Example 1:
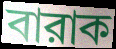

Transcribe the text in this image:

বারাক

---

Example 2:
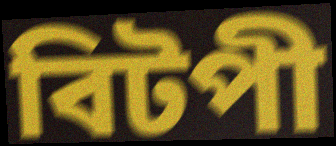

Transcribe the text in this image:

বিটপী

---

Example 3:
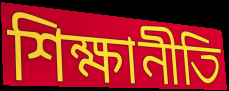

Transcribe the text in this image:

শিক্ষানীতি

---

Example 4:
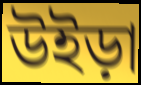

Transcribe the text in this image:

উইড়া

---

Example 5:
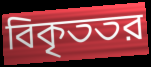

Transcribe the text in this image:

বিকৃততর